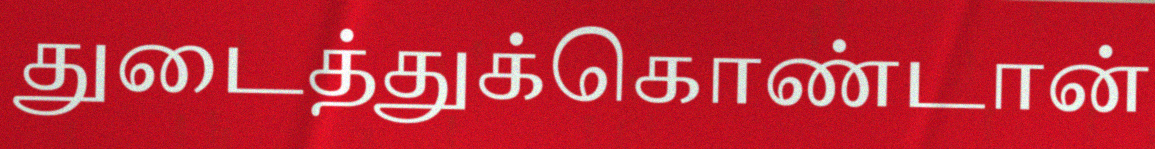
துடைத்துக்கொண்டான்